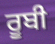
ਰੂਬੀ